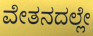
ವೇತನದಲ್ಲೇ